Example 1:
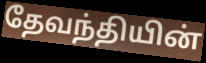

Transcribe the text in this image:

தேவந்தியின்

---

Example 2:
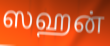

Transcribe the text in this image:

ஸஹன்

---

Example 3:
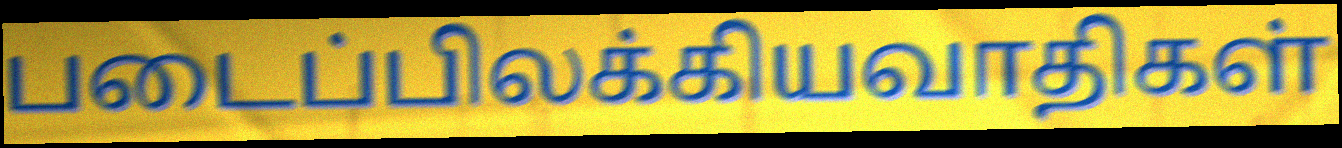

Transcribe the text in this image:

படைப்பிலக்கியவாதிகள்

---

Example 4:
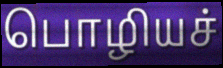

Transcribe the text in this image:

பொழியச்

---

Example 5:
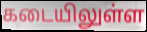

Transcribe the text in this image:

கடையிலுள்ள